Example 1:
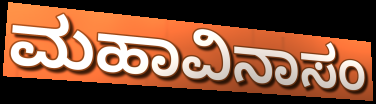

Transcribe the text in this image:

ಮಹಾವಿನಾಸಂ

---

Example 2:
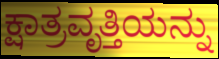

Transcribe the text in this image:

ಕ್ಷಾತ್ರವೃತ್ತಿಯನ್ನು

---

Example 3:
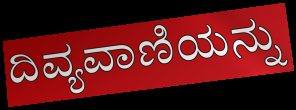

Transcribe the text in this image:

ದಿವ್ಯವಾಣಿಯನ್ನು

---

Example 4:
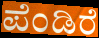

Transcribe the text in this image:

ಪೆಂಡಿರೆ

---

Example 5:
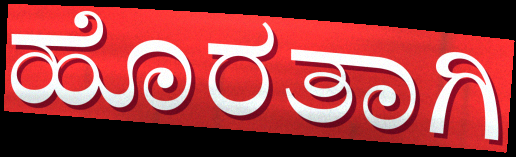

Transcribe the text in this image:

ಹೊರತಾಗಿ